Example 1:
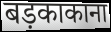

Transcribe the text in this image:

बड़काकाना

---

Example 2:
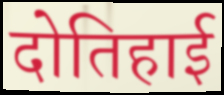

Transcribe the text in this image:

दोतिहाई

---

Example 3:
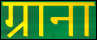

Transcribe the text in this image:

ग्राना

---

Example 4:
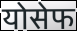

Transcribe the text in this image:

योसेफ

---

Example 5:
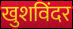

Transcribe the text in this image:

खुशविंदर